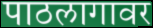
पाठलागावर